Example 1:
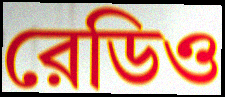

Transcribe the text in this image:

রেডিও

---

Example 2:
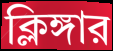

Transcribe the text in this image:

ক্লিঙ্গার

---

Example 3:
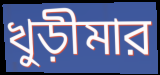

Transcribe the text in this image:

খুড়ীমার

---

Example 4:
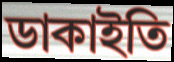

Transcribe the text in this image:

ডাকাইতি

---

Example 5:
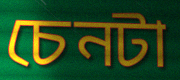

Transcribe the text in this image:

চেনটা